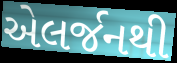
એલર્જનથી